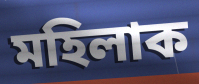
মহিলাক